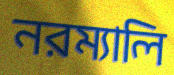
নরম্যালি